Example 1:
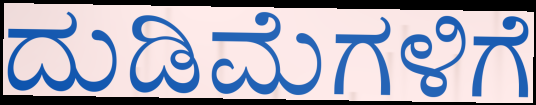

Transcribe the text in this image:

ದುಡಿಮೆಗಳಿಗೆ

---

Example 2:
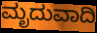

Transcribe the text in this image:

ಮೃದುವಾದಿ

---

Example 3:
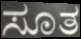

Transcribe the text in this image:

ಸೂತ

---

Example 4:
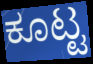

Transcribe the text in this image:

ಕೂಟ್ಟ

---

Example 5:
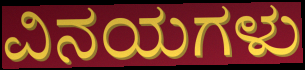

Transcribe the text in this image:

ವಿನಯಗಳು